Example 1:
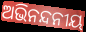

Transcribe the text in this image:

ଅଭିନନ୍ଦନୀୟ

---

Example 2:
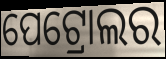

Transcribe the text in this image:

ପେଟ୍ରୋଲର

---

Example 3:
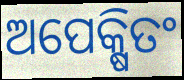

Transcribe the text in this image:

ଅପେକ୍ଷିତଂ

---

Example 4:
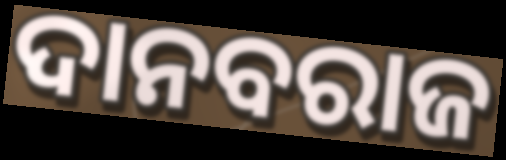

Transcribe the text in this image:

ଦାନବରାଜ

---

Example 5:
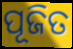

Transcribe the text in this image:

ପୂଜିତ